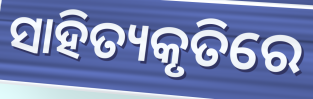
ସାହିତ୍ୟକୃତିରେ